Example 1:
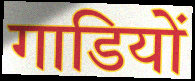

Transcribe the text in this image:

गाडियों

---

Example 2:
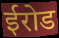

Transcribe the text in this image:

ईरोड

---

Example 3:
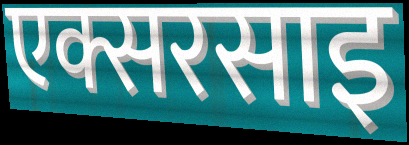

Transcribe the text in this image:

एक्सरसाइ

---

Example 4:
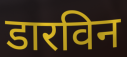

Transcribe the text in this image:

डारविन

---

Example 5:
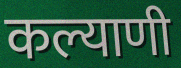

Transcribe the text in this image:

कल्याणी